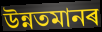
উন্নতমানৰ